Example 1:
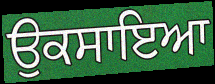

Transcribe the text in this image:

ਉਕਸਾਇਆ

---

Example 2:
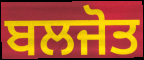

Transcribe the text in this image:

ਬਲਜੋਤ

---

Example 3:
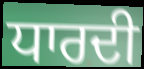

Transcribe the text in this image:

ਧਾਰਦੀ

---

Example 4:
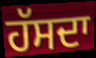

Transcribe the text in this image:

ਹੱਸਦਾ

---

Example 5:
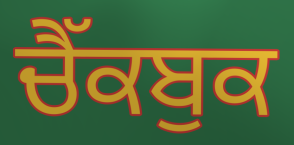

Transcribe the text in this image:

ਚੈੱਕਬੁਕ